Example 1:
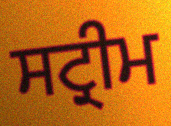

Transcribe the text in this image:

ਸਟ੍ਰੀਮ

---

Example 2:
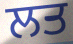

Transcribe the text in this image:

ਲਤ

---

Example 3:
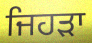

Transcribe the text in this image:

ਜਿਹੜਾ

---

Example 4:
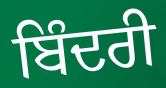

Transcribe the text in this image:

ਬਿੰਦਰੀ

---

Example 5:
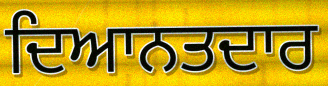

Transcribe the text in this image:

ਦਿਆਨਤਦਾਰ